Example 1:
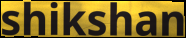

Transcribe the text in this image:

shikshan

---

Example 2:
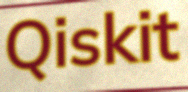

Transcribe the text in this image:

Qiskit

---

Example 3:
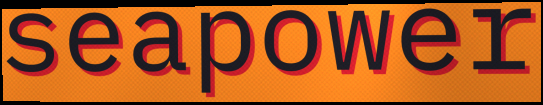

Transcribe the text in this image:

seapower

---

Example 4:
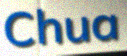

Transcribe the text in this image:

Chua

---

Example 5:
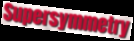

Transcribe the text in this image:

Supersymmetry